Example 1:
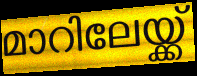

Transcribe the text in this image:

മാറിലേയ്ക്ക്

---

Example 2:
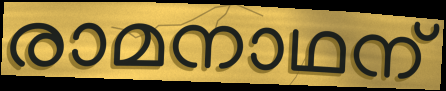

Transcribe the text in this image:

രാമനാഥന്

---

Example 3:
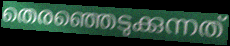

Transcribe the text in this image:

തെരഞ്ഞെടുക്കുന്നത്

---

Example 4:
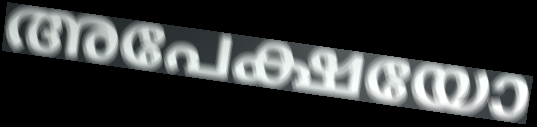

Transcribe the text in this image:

അപേക്ഷയോ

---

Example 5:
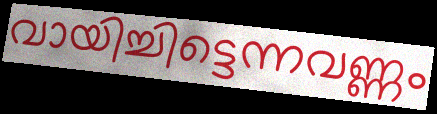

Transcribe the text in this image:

വായിച്ചിട്ടെന്നവണ്ണം